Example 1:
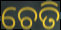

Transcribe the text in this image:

ଚେତି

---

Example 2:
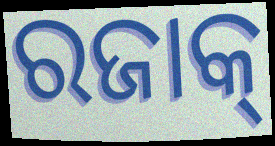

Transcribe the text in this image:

ରଜାକ୍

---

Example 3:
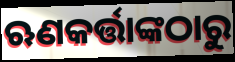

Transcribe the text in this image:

ଋଣକର୍ତ୍ତାଙ୍କଠାରୁ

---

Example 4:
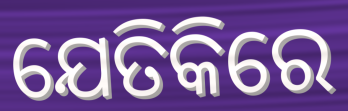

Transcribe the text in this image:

ଯେତିକିରେ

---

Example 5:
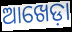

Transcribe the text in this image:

ଆଖେଡ଼ା